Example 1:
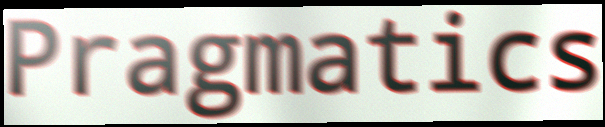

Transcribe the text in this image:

Pragmatics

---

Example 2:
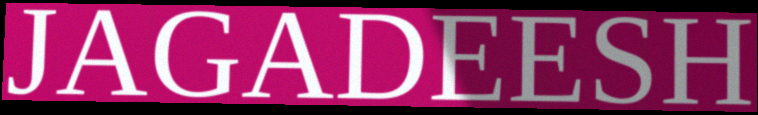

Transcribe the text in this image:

JAGADEESH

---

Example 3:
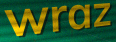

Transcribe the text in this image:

wraz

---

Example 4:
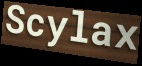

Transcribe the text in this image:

Scylax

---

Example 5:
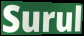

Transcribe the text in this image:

Surul